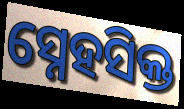
ସ୍ନେହସିକ୍ତ